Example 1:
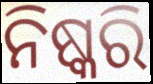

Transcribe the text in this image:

ନିଷ୍କରି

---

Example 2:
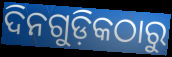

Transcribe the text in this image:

ଦିନଗୁଡ଼ିକଠାରୁ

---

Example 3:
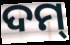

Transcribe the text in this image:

ଦମ୍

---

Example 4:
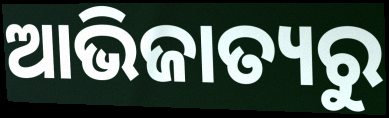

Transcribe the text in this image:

ଆଭିଜାତ୍ୟରୁ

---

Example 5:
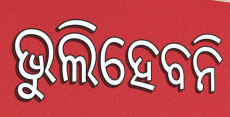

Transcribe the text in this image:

ଭୁଲିହେବନି